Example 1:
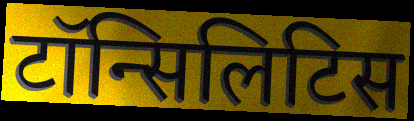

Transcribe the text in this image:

टॉन्सिलिटिस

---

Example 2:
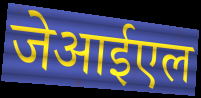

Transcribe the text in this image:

जेआईएल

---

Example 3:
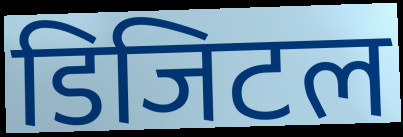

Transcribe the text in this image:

डिजिटल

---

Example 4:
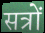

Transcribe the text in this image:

सत्रों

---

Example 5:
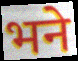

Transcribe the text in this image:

भने